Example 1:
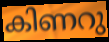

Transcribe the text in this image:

കിണറു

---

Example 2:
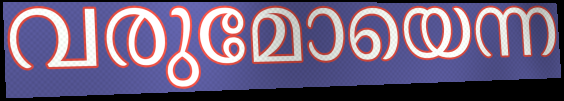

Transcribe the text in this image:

വരുമോയെന്ന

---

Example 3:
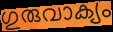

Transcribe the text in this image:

ഗുരുവാക്യം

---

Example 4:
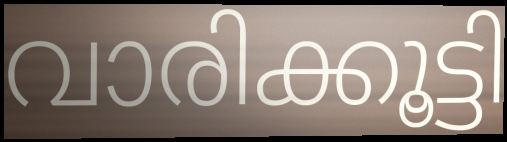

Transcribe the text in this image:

വാരിക്കൂട്ടി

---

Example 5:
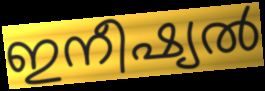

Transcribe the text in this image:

ഇനീഷ്യൽ